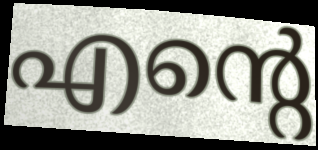
എന്റെ